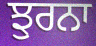
ਝੁਰਨਾ